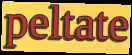
peltate